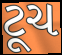
ટૂચ